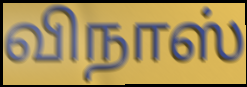
விநாஸ்